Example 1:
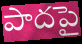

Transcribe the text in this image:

పాదపై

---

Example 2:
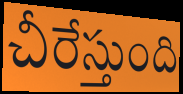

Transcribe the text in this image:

చీరేస్తుంది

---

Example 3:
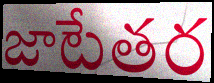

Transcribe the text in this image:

జాటేతర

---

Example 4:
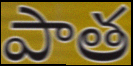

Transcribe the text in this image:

పాత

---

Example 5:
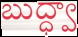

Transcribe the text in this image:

బుద్ధ్వా